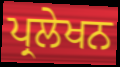
ਪ੍ਰਲੇਖਨ